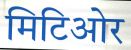
मिटिओर